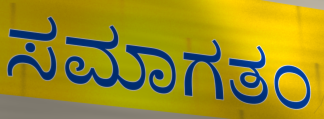
ಸಮಾಗತಂ